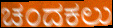
ಚಂದಕಲು